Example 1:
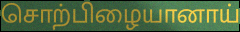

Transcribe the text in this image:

சொற்பிழையானாய்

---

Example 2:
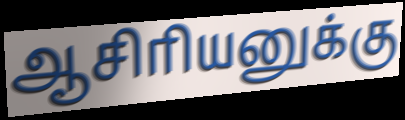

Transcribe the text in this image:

ஆசிரியனுக்கு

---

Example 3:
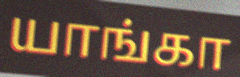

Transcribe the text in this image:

யாங்கா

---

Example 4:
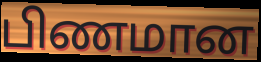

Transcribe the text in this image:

பிணமான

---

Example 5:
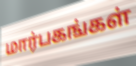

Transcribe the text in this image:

மார்பகங்கள்